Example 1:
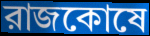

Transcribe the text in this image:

রাজকোষে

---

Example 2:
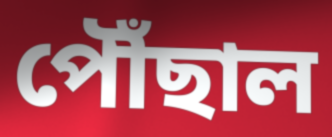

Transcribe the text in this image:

পৌঁছাল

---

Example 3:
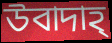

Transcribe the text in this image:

উবাদাহ্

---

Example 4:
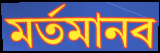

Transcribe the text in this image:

মর্তমানব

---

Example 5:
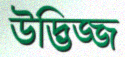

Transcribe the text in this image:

উদ্ভিজ্জ